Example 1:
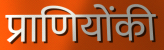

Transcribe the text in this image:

प्राणियोंकी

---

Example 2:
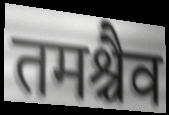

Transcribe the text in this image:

तमश्चैव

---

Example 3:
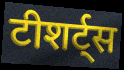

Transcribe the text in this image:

टीशर्ट्स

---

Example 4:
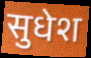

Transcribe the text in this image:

सुधेश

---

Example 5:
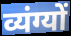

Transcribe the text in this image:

व्यंग्यों